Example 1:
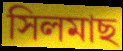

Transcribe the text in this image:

সিলমাছ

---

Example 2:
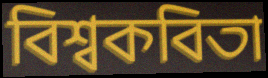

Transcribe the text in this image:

বিশ্বকবিতা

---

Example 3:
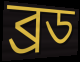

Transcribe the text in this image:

ব্রড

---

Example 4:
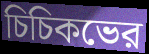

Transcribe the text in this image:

চিচিকভের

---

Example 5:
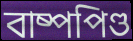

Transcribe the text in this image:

বাষ্পপিণ্ড